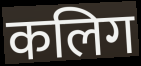
कलिग